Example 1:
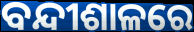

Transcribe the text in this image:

ବନ୍ଦୀଶାଳରେ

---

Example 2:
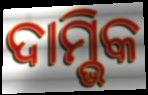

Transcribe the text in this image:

ଦାମ୍ଭିକ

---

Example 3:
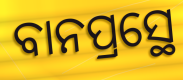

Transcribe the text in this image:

ବାନପ୍ରସ୍ଥେ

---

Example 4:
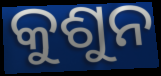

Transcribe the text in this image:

କୁଶୁନ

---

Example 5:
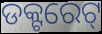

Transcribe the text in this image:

ଡକ୍ଟରେଟ୍